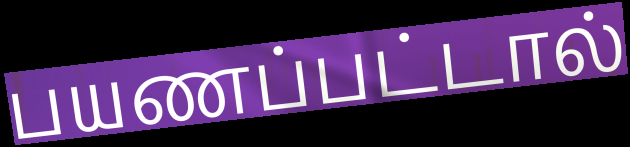
பயணப்பட்டால்